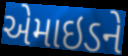
એમાઇડને